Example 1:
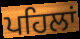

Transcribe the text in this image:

ਪਹਿਲਾਂ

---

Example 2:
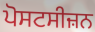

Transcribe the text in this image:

ਪੋਸਟਸੀਜ਼ਨ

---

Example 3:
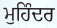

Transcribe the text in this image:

ਮੁਹਿੰਦਰ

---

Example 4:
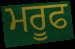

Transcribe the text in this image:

ਮਰੂਫ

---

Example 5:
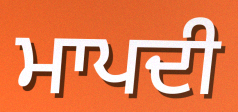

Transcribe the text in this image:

ਮਾਪਦੀ